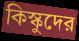
কিস্কুদের